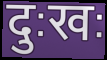
दुःखः